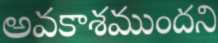
అవకాశముందని